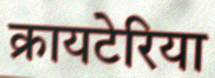
क्रायटेरिया